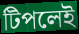
টিপলেই